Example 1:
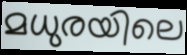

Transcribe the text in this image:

മധുരയിലെ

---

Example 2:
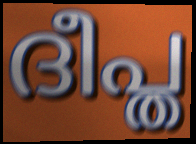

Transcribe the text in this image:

ദീപ്ത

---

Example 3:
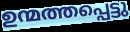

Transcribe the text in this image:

ഉന്മത്തപ്പെട്ടു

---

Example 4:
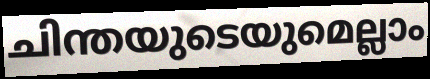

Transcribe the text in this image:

ചിന്തയുടെയുമെല്ലാം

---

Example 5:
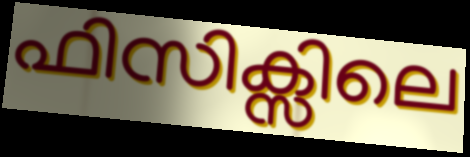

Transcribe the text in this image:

ഫിസിക്സിലെ